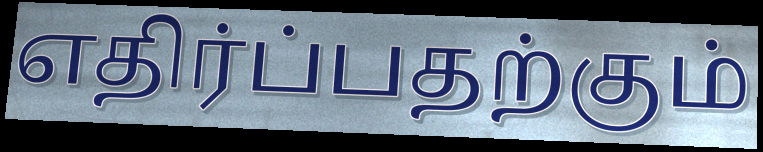
எதிர்ப்பதற்கும்